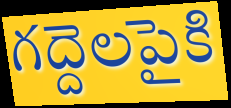
గద్దెలపైకి